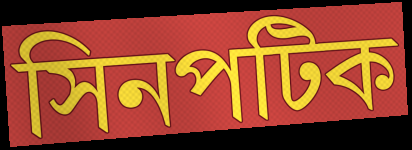
সিনপটিক